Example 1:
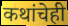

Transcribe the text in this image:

कथांचेही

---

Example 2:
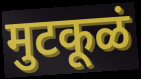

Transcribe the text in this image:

मुटकूळं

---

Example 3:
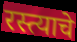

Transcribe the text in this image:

रस्त्याचे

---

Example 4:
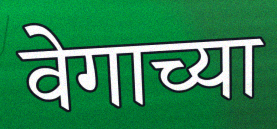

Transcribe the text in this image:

वेगाच्या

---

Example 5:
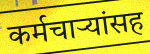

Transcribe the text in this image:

कर्मचाऱ्यांसह